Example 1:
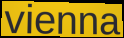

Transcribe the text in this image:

vienna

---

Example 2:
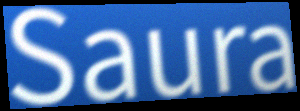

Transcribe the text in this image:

Saura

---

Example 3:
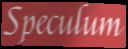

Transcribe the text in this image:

Speculum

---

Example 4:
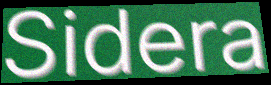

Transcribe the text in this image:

Sidera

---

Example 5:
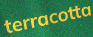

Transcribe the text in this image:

terracotta